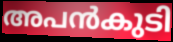
അപൻകുടി